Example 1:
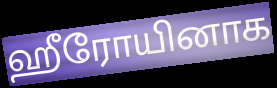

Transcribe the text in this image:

ஹீரோயினாக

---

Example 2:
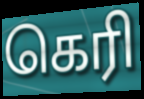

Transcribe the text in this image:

கெரி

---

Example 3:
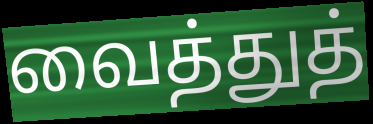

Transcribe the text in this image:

வைத்துத்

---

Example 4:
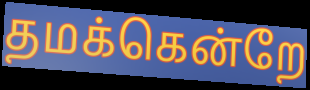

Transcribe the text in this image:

தமக்கென்றே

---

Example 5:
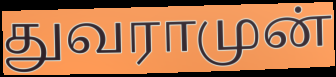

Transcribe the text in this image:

துவராமுன்